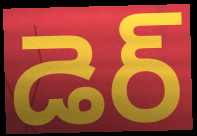
డెర్